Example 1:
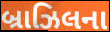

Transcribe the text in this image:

બ્રાઝિલના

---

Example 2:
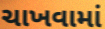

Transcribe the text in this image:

ચાખવામાં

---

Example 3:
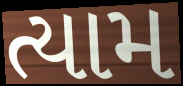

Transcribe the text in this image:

ત્યામ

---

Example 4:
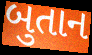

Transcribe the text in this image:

બુતાન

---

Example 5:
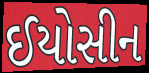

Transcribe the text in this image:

ઈયોસીન